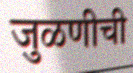
जुळणीची